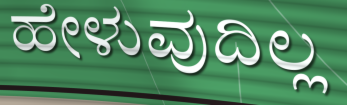
ಹೇಳುವುದಿಲ್ಲ